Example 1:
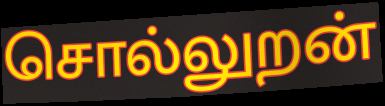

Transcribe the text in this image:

சொல்லுறன்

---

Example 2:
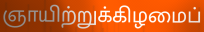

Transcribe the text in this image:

ஞாயிற்றுக்கிழமைப்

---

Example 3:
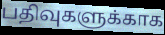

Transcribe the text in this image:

பதிவுகளுக்காக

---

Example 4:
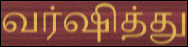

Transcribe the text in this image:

வர்ஷித்து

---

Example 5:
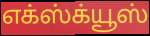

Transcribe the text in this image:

எக்ஸ்க்யூஸ்